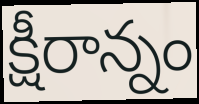
క్షీరాన్నం